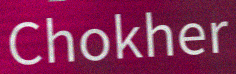
Chokher